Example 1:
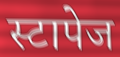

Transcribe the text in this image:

स्टापेज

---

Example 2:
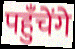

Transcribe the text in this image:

पहुँचेंगे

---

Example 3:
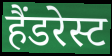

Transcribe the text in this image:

हैंडरेस्ट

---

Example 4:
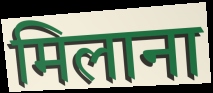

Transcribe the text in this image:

मिलाना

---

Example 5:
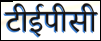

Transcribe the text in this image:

टीईपीसी